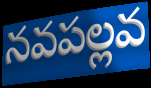
నవపల్లవ